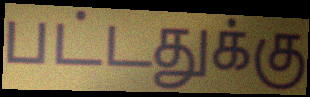
பட்டதுக்கு